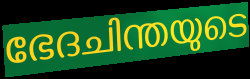
ഭേദചിന്തയുടെ